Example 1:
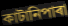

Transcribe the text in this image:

কাটানিপাৰা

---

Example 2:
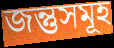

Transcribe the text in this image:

জন্তুসমূহ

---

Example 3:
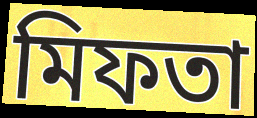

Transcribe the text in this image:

মিফতা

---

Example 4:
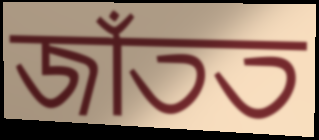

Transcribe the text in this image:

জাঁতত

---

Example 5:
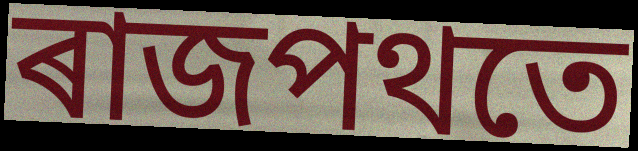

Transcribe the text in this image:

ৰাজপথতে